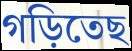
গড়িতেছ